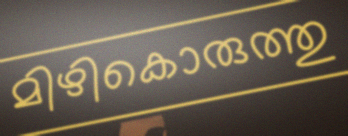
മിഴികൊരുത്തു